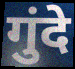
गुंदे